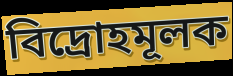
বিদ্রোহমূলক